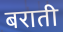
बराती